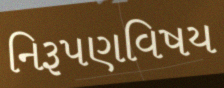
નિરૂપણવિષય